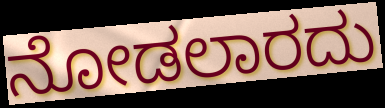
ನೋಡಲಾರದು